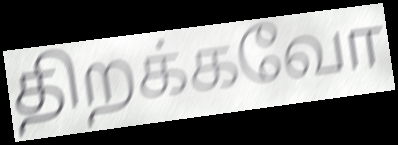
திறக்கவோ